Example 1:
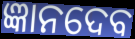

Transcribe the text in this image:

ଜ୍ଞାନଦେବ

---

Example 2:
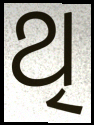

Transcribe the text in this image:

ଥି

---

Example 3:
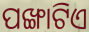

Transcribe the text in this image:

ପଙ୍ଖାଟିଏ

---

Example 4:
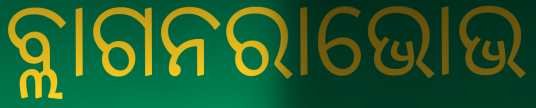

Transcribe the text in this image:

ବ୍ଲାଗନରାଭୋଭ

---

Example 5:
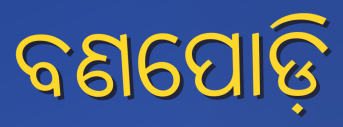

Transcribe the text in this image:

ବଣପୋଡ଼ି